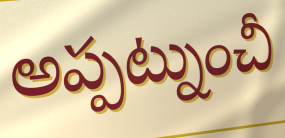
అప్పట్నుంచీ